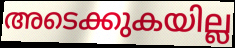
അടെക്കുകയില്ല